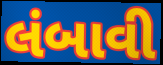
લંબાવી